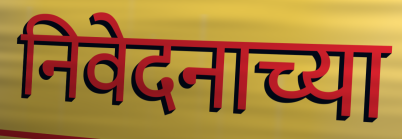
निवेदनाच्या